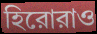
হিরোরাও